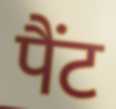
पैंट